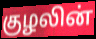
குழலின்